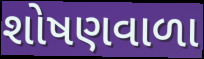
શોષણવાળા